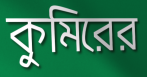
কুমিরের